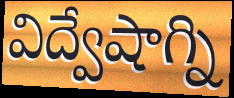
విద్వేషాగ్ని